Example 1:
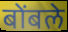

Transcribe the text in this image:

बोंबले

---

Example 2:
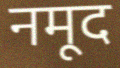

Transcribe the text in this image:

नमूद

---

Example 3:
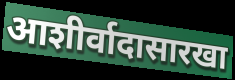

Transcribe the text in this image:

आशीर्वादासारखा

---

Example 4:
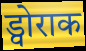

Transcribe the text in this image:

ड्वोराक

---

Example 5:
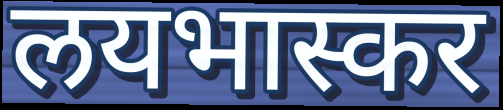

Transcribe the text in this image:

लयभास्कर